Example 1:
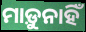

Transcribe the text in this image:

ମାଡ଼ୁନାହିଁ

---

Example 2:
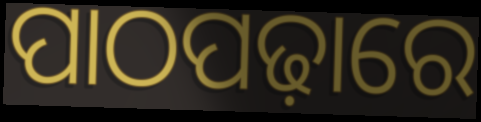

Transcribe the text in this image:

ପାଠପଢ଼ାରେ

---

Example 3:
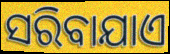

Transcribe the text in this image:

ସରିବାଯାଏ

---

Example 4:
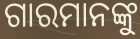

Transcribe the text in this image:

ଗାରମାନଙ୍କୁ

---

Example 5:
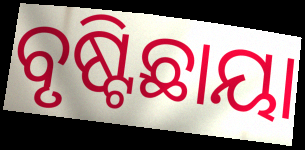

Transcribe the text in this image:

ବୃଷ୍ଟିଛାୟା